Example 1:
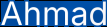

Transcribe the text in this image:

Ahmad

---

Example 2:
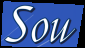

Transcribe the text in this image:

Sou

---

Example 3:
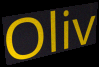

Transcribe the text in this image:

Oliv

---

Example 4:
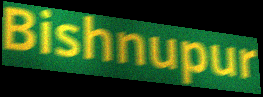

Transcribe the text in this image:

Bishnupur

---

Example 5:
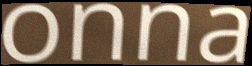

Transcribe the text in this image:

onna